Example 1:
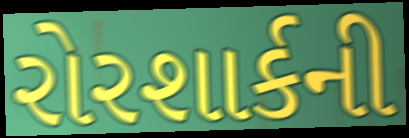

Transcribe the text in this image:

રોરશાર્કની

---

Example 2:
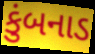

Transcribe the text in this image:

કુંબનાડ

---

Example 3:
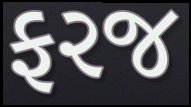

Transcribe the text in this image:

ફરજ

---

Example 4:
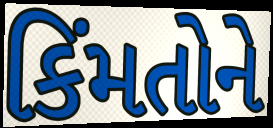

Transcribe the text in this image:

કિંમતોને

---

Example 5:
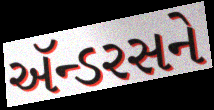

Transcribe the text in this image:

ઍન્ડરસને